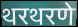
थरथरणे